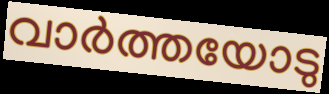
വാർത്തയോടു